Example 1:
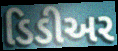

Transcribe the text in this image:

ડિડીઅર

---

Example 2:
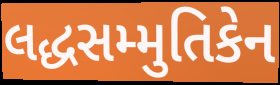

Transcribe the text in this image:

લદ્ધસમ્મુતિકેન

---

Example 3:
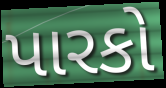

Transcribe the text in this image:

પારકો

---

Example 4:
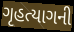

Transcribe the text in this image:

ગૃહત્યાગની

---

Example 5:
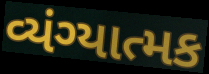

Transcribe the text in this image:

વ્યંગ્યાત્મક